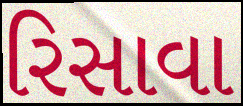
રિસાવા